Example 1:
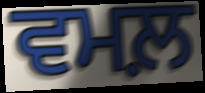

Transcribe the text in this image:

ਵਮਲ਼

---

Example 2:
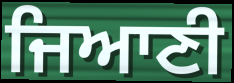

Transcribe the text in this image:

ਜਿਆਣੀ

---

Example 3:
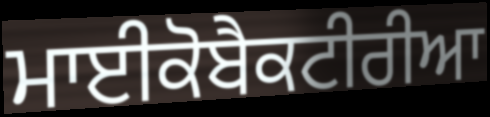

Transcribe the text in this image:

ਮਾਈਕੋਬੈਕਟੀਰੀਆ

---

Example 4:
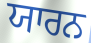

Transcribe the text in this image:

ਯਾਰਨ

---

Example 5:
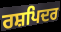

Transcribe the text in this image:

ਰਸ਼ਪਿਦਰ